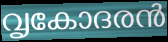
വൃകോദരൻ